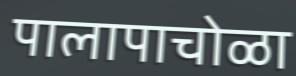
पालापाचोळा